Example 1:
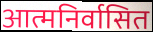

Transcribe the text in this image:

आत्मनिर्वासित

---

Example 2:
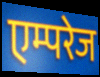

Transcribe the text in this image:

एम्परेज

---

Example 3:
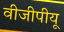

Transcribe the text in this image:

वीजीपीयू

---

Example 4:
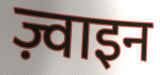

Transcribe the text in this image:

ज़्वाइन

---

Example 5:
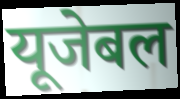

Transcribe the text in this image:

यूजेबल